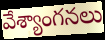
వేశ్యాంగనలు